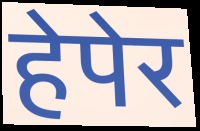
हेपेर